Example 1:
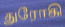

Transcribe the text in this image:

துரோகி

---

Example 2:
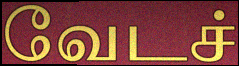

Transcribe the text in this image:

வேடச்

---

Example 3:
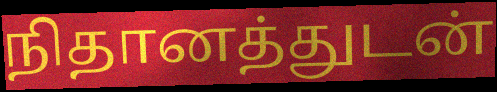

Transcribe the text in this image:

நிதானத்துடன்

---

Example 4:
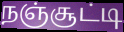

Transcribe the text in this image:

நஞ்சூட்டி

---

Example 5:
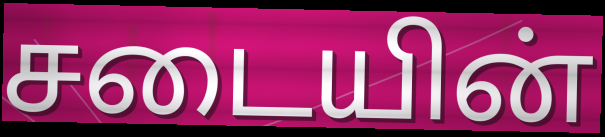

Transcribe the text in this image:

சடையின்